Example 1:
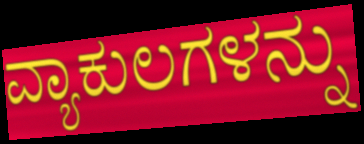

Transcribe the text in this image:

ವ್ಯಾಕುಲಗಳನ್ನು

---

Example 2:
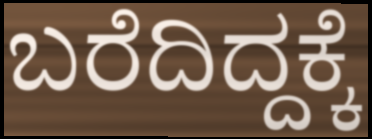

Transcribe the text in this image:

ಬರೆದಿದ್ದಕ್ಕೆ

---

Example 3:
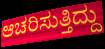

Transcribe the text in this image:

ಆಚರಿಸುತ್ತಿದ್ದು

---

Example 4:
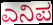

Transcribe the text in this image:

ಎನಿಪ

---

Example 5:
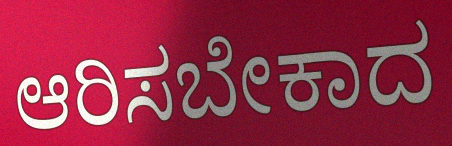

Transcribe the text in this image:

ಆರಿಸಬೇಕಾದ